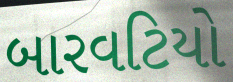
બારવટિયો